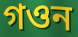
গওন